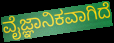
ವೈಜ್ಞಾನಿಕವಾಗಿದೆ